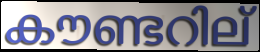
കൗണ്ടറില്